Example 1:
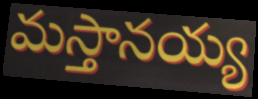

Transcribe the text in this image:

మస్తానయ్య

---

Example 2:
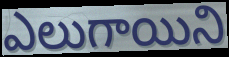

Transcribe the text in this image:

ఎలుగాయిని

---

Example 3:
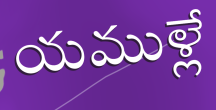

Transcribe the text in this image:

యముళ్లే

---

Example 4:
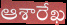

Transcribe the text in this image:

ఆశారేఖ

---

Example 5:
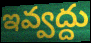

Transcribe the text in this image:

ఇవ్వద్దు